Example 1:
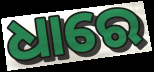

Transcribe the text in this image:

ଧାରେ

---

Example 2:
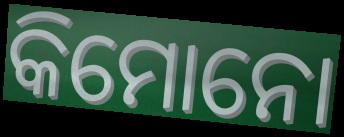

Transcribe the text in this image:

କିମୋନୋ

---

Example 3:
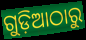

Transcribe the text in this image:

ଗୁଡ଼ିଆଠାରୁ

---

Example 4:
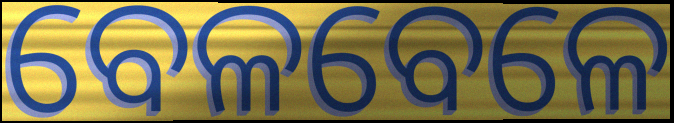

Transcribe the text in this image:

ବେଳବେଳେ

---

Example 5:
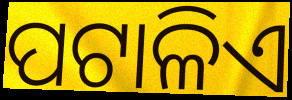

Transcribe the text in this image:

ପଟାଳିଏ